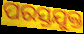
ପରସ୍ତଯୁକ୍ତ